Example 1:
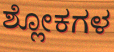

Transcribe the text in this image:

ಶ್ಲೋಕಗಳ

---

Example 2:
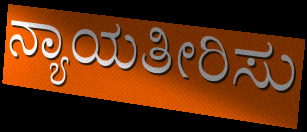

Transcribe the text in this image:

ನ್ಯಾಯತೀರಿಸು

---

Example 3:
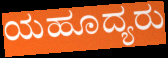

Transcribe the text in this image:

ಯಹೂದ್ಯರು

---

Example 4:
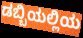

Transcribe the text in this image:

ಡಬ್ಬಿಯಲ್ಲಿಯ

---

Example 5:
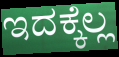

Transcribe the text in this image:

ಇದಕ್ಕೆಲ್ಲ